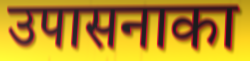
उपासनाका